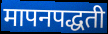
मापनपद्धती